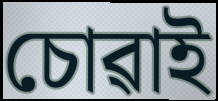
চোৱাই